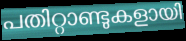
പതിറ്റാണ്ടുകളായി